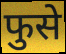
फुसे